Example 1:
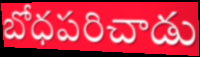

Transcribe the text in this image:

బోధపరిచాడు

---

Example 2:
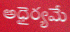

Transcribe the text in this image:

అధైర్యమే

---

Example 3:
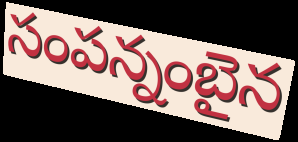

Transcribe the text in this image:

సంపన్నంబైన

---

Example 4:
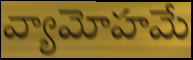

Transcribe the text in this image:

వ్యామోహమే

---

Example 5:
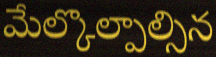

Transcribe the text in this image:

మేల్కొల్పాల్సిన